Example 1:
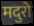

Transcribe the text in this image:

मदुरो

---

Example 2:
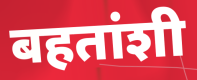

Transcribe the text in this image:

बहतांशी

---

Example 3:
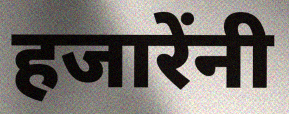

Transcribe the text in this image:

हजारेंनी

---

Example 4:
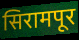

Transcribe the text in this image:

सिरामपूर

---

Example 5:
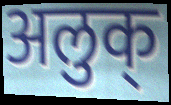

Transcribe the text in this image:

अलुक्